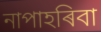
নাপাহৰিবা